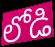
లోడి